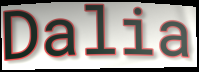
Dalia